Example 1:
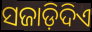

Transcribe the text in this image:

ସଜାଡ଼ିଦିଏ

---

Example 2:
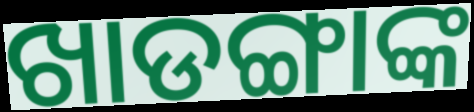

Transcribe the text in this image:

ଖାଡଙ୍ଗାଙ୍କ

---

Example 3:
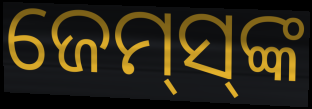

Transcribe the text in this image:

ଜେମ୍‌ସ୍‌ଙ୍କ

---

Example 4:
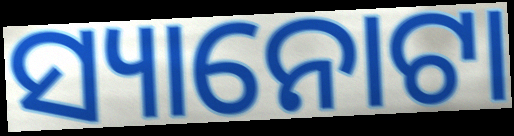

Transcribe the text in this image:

ସ୍ୟାନୋଟା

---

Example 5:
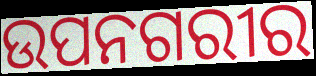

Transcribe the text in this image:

ଉପନଗରୀର